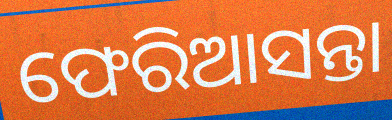
ଫେରିଆସନ୍ତା